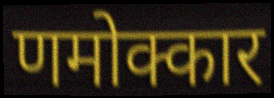
णमोक्कार